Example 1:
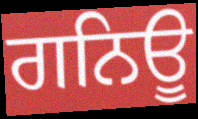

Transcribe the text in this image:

ਗਨਿਊ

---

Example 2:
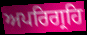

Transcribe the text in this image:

ਅਪਰਿਗ੍ਰਹਿ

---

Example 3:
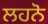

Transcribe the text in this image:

ਲਹਨੋ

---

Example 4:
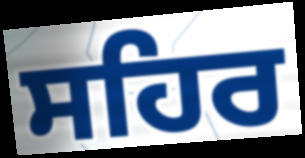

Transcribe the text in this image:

ਸਹਿਰ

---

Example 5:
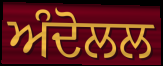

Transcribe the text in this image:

ਅੰਦੋਲਲ